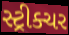
સ્ટ્રીક્ચર